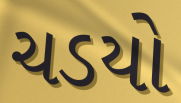
ચડયો